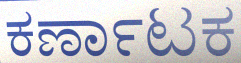
ಕರ್ಣಾಟಕ